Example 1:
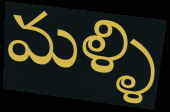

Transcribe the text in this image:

మళ్ళి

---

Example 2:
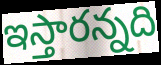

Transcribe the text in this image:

ఇస్తారన్నది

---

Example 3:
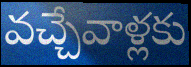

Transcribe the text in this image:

వచ్చేవాళ్లకు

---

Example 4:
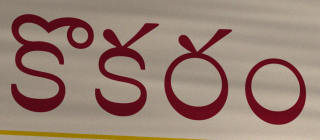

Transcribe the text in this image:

కొకరం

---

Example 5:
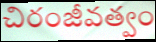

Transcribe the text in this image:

చిరంజీవత్వం